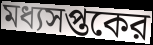
মধ্যসপ্তকের